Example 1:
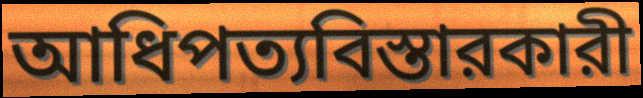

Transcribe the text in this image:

আধিপত্যবিস্তারকারী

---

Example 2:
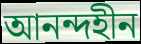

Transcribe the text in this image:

আনন্দহীন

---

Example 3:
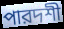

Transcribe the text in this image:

পারদশী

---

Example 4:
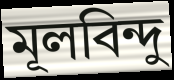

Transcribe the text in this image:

মূলবিন্দু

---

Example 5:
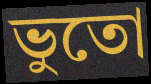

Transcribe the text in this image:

ভুতো